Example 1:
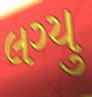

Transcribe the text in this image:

લગ્યુ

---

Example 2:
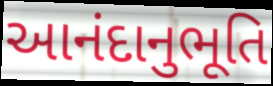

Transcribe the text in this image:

આનંદાનુભૂતિ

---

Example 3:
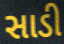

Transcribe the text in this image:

સાડી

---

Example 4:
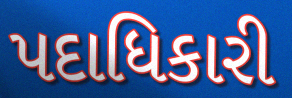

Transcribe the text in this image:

પદાધિકારી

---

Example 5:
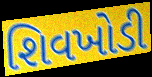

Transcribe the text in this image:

શિવખોડી